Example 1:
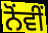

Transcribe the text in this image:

ਨੋਂਵੀਂ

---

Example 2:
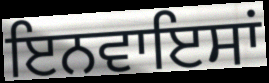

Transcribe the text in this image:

ਇਨਵਾਇਸਾਂ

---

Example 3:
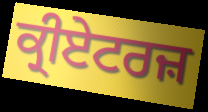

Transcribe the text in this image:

ਕ੍ਰੀਏਟਰਜ਼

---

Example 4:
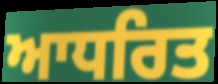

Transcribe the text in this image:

ਆਧਰਿਤ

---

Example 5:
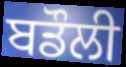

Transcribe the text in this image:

ਬਡੌਲੀ